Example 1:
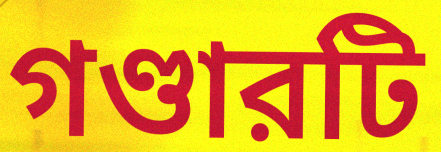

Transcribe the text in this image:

গণ্ডারটি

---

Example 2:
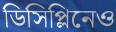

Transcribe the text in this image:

ডিসিপ্লিনেও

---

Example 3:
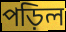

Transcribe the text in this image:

পড়িল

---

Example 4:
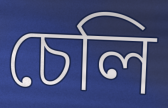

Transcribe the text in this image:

চেলি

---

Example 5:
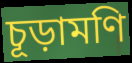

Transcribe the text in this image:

চূড়ামণি